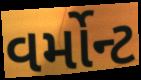
વર્મોન્ટ